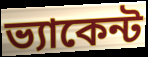
ভ্যাকেন্ট